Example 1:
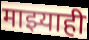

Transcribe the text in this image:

माझ्याही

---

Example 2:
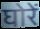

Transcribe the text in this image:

घोरें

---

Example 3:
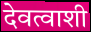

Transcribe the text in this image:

देवत्वाशी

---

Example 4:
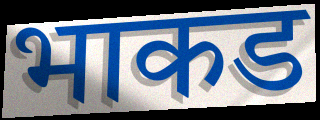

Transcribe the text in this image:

भाकड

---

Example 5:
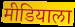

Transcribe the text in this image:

मीडियाला